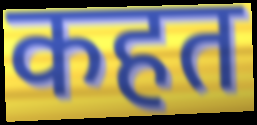
कहत